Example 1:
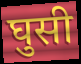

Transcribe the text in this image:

घुसी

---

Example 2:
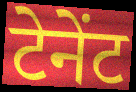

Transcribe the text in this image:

टेनेंट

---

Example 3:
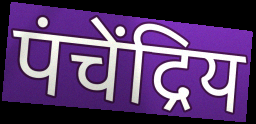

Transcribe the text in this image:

पंचेंद्रिय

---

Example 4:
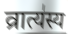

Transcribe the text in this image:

व्रात्य॑स्य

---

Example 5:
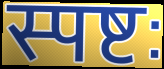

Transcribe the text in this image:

स्पष्टः